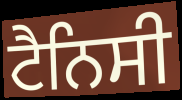
ਟੈਨਿਸੀ